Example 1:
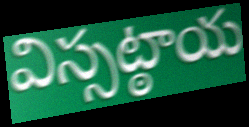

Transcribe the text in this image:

విస్సట్ఠాయ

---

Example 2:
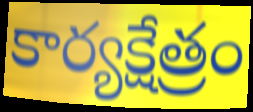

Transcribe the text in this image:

కార్యక్షేత్రం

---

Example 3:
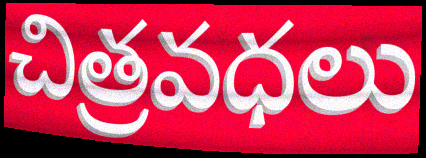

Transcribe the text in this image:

చిత్రవధలు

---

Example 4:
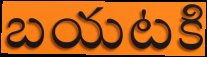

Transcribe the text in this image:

బయటకి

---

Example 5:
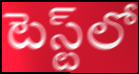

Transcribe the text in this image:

టెస్ట్‌లో